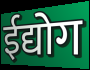
ईद्योग